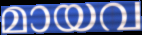
മായവ